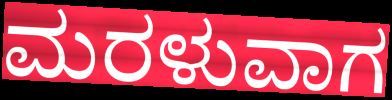
ಮರಳುವಾಗ